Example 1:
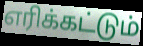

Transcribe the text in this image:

எரிக்கட்டும்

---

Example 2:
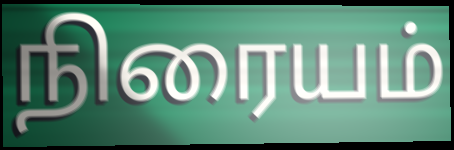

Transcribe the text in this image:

நிரையம்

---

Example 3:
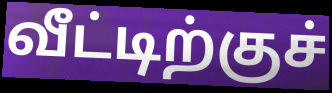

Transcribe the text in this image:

வீட்டிற்குச்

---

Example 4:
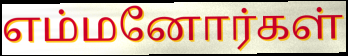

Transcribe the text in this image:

எம்மனோர்கள்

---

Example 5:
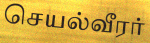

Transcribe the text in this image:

செயல்வீரர்